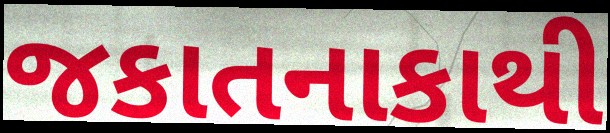
જકાતનાકાથી